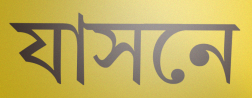
যাসনে